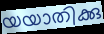
യയാതിക്കു